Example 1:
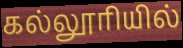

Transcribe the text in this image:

கல்லூரியில்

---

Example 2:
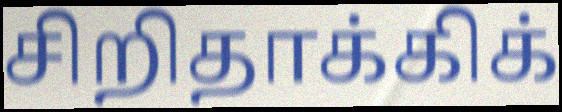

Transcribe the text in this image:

சிறிதாக்கிக்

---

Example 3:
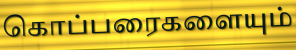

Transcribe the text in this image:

கொப்பரைகளையும்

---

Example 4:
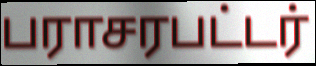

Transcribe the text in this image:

பராசரபட்டர்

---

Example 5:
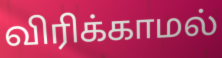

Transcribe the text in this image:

விரிக்காமல்